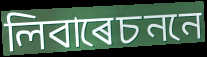
লিবাৰেচননে